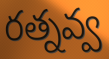
రత్నవ్వ